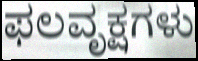
ಫಲವೃಕ್ಷಗಳು